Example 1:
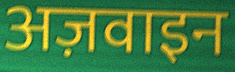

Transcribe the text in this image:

अज़वाइन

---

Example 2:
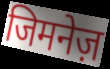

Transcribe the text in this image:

जिमनेज़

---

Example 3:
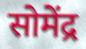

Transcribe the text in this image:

सोमेंद्र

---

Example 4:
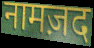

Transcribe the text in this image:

नामज़द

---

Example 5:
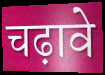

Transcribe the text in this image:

चढ़ावे